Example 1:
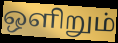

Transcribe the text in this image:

ஒளிறும்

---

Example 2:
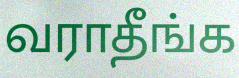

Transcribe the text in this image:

வராதீங்க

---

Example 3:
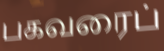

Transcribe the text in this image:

பகவரைப்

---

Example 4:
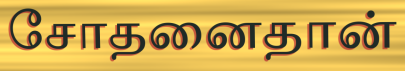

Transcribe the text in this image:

சோதனைதான்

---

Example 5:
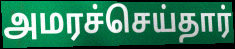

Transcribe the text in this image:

அமரச்செய்தார்